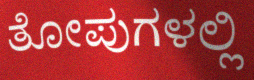
ತೋಪುಗಳಲ್ಲಿ